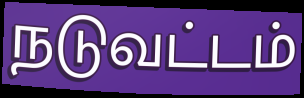
நடுவட்டம்